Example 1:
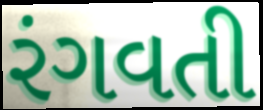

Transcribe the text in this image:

રંગવતી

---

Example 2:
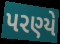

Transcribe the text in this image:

પરણ્યે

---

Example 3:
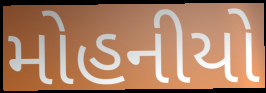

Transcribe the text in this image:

મોહનીયો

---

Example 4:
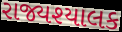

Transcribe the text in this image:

રાજ્યશ્યાલક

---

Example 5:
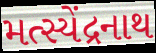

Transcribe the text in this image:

મત્સ્યેંદ્રનાથ